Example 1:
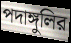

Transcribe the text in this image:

পদাঙ্গুলির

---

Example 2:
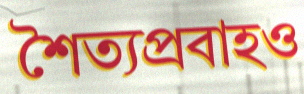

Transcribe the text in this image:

শৈত্যপ্রবাহও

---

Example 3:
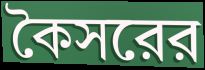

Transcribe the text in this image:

কৈসরের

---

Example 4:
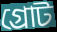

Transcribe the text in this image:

গ্রোট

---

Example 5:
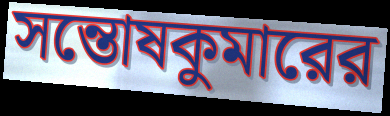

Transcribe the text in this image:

সন্তোষকুমারের